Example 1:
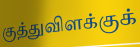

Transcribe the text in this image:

குத்துவிளக்குக்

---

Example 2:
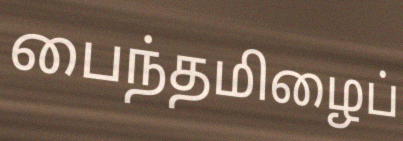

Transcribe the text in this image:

பைந்தமிழைப்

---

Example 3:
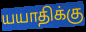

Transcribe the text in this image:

யயாதிக்கு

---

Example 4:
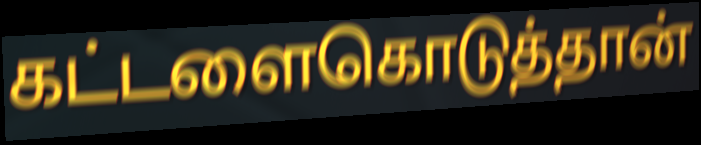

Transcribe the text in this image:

கட்டளைகொடுத்தான்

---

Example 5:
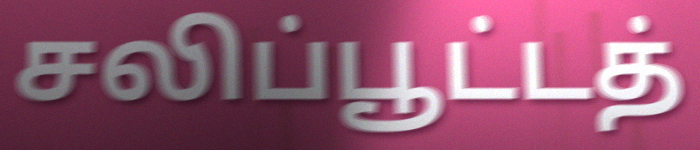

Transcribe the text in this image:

சலிப்பூட்டத்